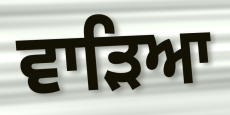
ਵਾੜਿਆ